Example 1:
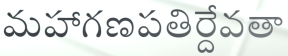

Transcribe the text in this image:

మహాగణపతిర్దేవతా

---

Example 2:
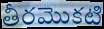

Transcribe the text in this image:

తీరమొకటి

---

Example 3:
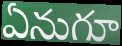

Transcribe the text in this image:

ఏనుగూ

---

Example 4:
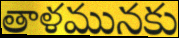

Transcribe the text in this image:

తాళమునకు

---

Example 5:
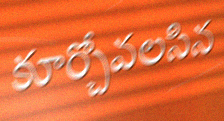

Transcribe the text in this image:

కూర్చోవలసిన